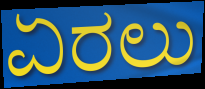
ಏರಲು